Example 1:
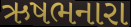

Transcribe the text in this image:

ઋષભનારા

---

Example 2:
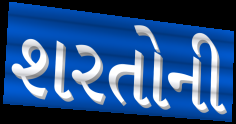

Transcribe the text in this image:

શરતોની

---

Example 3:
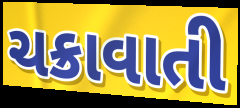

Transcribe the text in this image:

ચક્રાવાતી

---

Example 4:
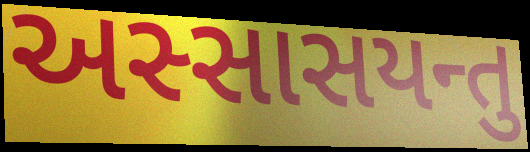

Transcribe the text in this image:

અસ્સાસયન્તુ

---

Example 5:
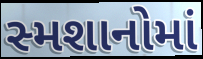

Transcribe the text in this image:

સ્મશાનોમાં